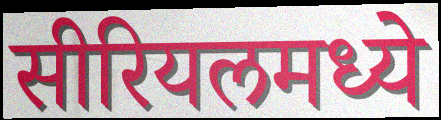
सीरियलमध्ये